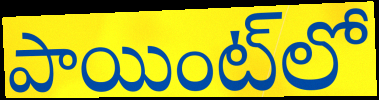
పాయింట్‌లో